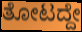
ತೋಟದ್ದೇ